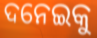
ଦନେଇକୁ